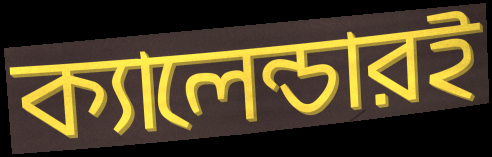
ক্যালেন্ডারই